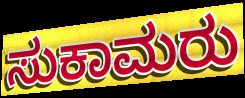
ಸುಕಾಮರು